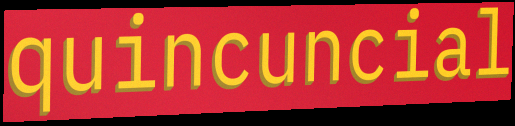
quincuncial